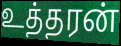
உத்தரன்